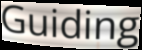
Guiding